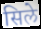
सिले